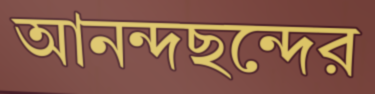
আনন্দছন্দের